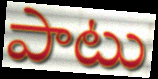
పాటు